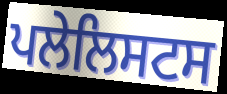
ਪਲੇਲਿਸਟਸ